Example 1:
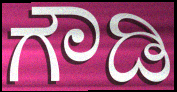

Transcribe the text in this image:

ಗೌಡಿ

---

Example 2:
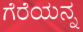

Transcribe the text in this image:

ಗೆರೆಯನ್ನ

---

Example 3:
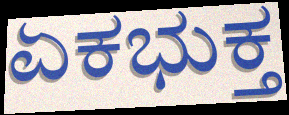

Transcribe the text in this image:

ಏಕಭುಕ್ತ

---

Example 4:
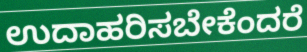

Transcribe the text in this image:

ಉದಾಹರಿಸಬೇಕೆಂದರೆ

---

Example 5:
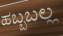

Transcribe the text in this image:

ಹಬ್ಬಬಲ್ಲ